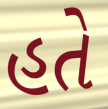
હતે